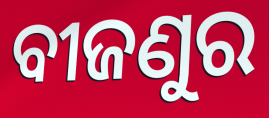
ବୀଜଣୁର